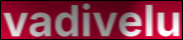
vadivelu